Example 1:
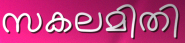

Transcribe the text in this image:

സകലമിതി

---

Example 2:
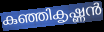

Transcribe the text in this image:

കുഞ്ഞികൃഷ്ണൻ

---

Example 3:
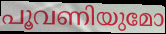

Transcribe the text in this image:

പൂവണിയുമോ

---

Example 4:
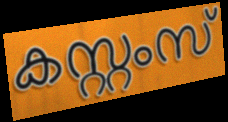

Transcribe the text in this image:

കസ്റ്റംസ്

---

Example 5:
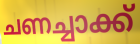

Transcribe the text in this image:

ചണച്ചാക്ക്